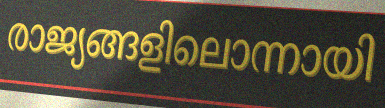
രാജ്യങ്ങളിലൊന്നായി